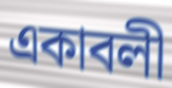
একাবলী